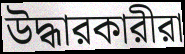
উদ্ধারকারীরা